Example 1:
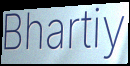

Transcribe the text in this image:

Bhartiy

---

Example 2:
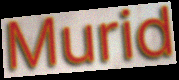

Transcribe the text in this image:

Murid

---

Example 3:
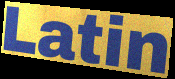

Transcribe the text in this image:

Latin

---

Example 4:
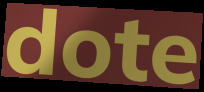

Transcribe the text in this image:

dote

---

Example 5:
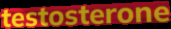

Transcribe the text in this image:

testosterone